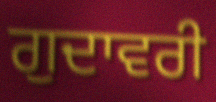
ਗੁਦਾਵਰੀ